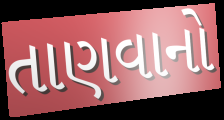
તાણવાનો